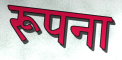
रूपना